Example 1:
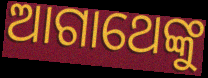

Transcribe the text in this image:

ଆଗାଥେଙ୍କୁ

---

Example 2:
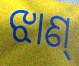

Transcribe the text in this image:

ଝାଣ୍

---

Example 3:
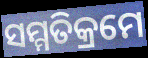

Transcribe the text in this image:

ସମ୍ମତିକ୍ରମେ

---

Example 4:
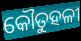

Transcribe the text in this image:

କୌତୁହଳୀ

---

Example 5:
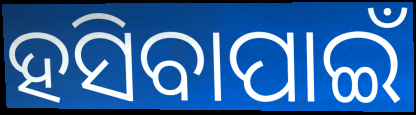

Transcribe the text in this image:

ହସିବାପାଇଁ